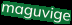
maguvige